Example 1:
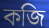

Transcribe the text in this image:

কজি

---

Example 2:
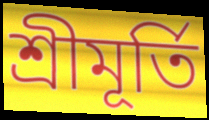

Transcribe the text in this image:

শ্রীমূর্তি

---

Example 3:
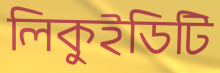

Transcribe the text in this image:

লিকুইডিটি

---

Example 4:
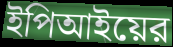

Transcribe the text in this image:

ইপিআইয়ের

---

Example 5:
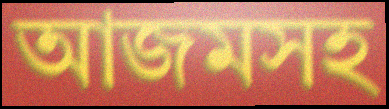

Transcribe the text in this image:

আজমসহ